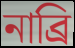
নাব্রি